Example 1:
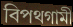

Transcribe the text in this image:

বিপথগামী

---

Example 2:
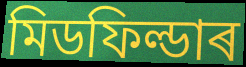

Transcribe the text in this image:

মিডফিল্ডাৰ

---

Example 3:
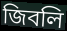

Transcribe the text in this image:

জিবলি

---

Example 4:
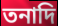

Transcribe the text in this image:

তনাদি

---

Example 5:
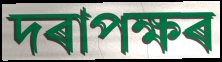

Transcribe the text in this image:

দৰাপক্ষৰ